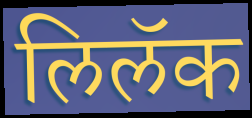
लिलॅक